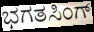
ಭಗತಸಿಂಗ್